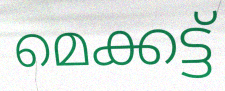
മെക്കട്ട്